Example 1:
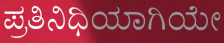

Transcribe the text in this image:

ಪ್ರತಿನಿಧಿಯಾಗಿಯೇ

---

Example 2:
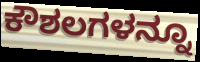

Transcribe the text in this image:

ಕೌಶಲಗಳನ್ನೂ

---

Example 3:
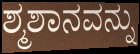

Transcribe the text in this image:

ಶ್ಮಶಾನವನ್ನು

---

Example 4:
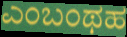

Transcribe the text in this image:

ಎಂಬಂಥಹ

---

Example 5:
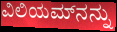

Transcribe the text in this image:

ವಿಲಿಯಮ್‌ನನ್ನು